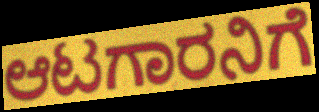
ಆಟಗಾರನಿಗೆ